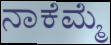
ನಾಕೆಮ್ಮೆ